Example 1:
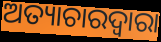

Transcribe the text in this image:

ଅତ୍ୟାଚାରଦ୍ୱାରା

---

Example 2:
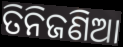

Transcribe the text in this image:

ତିନିଜଣିଆ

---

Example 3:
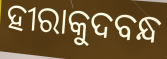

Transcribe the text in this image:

ହୀରାକୁଦବନ୍ଧ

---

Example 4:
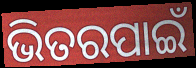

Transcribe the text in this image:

ଭିତରପାଇଁ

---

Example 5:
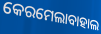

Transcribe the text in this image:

କେରମେଲାବାହାଲ